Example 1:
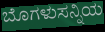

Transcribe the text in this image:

ಬೊಗಳುಸನ್ನಿಯ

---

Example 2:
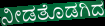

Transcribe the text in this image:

ನೀಡತೊಡಗಿದ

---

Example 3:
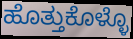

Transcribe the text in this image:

ಹೊತ್ತುಕೊಳ್ಳೊ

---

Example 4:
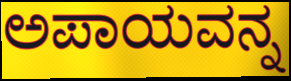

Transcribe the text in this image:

ಅಪಾಯವನ್ನ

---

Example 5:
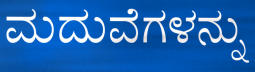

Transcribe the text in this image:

ಮದುವೆಗಳನ್ನು